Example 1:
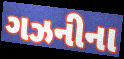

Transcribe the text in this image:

ગઝનીના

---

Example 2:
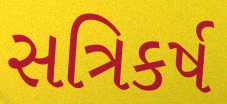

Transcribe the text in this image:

સત્રિકર્ષ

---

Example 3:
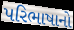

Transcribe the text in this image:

પરિભાષાનો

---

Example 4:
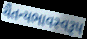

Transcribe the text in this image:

ચૈતન્યભાવસ્વરૂપ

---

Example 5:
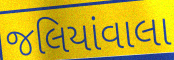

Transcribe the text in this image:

જલિયાંવાલા